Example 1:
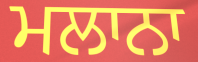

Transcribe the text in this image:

ਮਲਾਨਾ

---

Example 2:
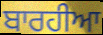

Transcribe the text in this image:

ਬਾਰਹੀਆ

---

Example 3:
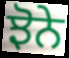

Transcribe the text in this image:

ਝੋਨੇ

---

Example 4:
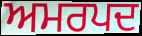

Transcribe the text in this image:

ਅਮਰਪਦ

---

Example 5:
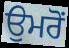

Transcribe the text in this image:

ਉਮਰੋਂ